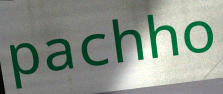
pachho